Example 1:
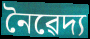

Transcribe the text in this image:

নৈৱেদ্য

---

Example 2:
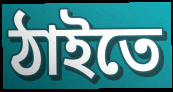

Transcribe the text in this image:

ঠাইতে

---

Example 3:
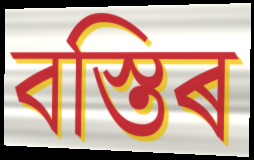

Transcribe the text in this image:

বস্তিৰ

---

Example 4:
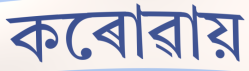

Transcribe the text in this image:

কৰোৱায়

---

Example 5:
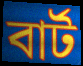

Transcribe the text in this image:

বাৰ্ট